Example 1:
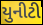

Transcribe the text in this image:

યુનીટી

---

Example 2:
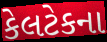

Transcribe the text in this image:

કેલટેકના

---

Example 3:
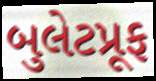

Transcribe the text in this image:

બુલેટપ્રૂફ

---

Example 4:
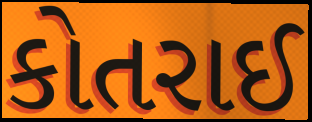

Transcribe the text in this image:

કોતરાઈ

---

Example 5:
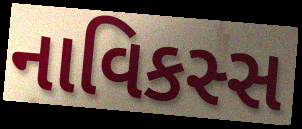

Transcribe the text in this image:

નાવિકસ્સ